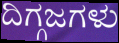
ದಿಗ್ಗಜಗಳು